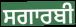
ਸਗਾਰਬੀ